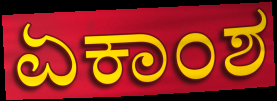
ಏಕಾಂಶ